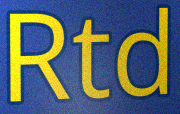
Rtd